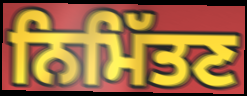
ਨਿਮਿੱਤਣ